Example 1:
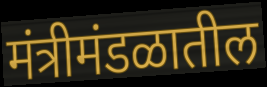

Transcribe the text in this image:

मंत्रीमंडळातील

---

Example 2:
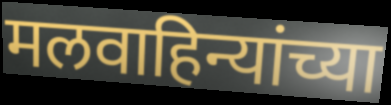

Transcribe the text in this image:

मलवाहिन्यांच्या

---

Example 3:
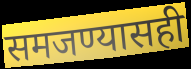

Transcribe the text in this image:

समजण्यासही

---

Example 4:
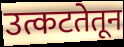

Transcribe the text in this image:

उत्कटतेतून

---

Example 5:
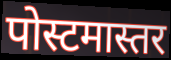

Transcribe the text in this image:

पोस्टमास्तर